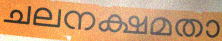
ചലനക്ഷമതാ